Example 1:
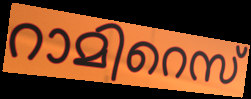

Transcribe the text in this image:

റാമിറെസ്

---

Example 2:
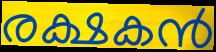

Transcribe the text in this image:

രക്ഷകൻ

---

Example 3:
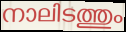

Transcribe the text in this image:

നാലിടത്തും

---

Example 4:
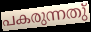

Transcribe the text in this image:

പകരുന്നതു്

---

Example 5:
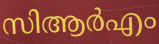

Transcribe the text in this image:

സിആർഎം